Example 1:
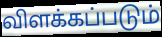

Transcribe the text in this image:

விளக்கப்படும்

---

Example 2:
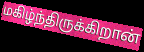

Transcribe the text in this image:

மகிழ்ந்திருக்கிறான்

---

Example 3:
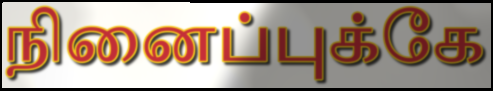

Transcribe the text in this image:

நினைப்புக்கே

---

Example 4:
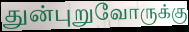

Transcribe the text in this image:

துன்புறுவோருக்கு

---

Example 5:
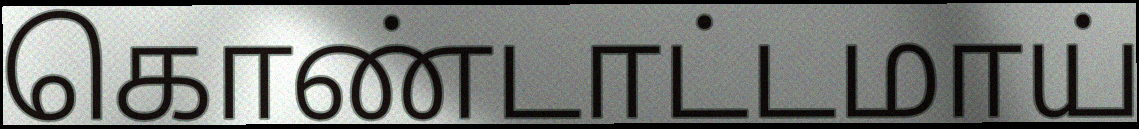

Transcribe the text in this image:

கொண்டாட்டமாய்